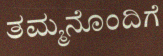
ತಮ್ಮನೊಂದಿಗೆ